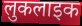
लुकलाइक